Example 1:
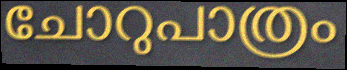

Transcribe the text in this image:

ചോറുപാത്രം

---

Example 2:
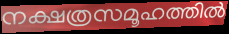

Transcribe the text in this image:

നക്ഷത്രസമൂഹത്തിൽ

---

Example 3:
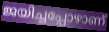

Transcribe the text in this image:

ജയിച്ചപ്പോഴാണ്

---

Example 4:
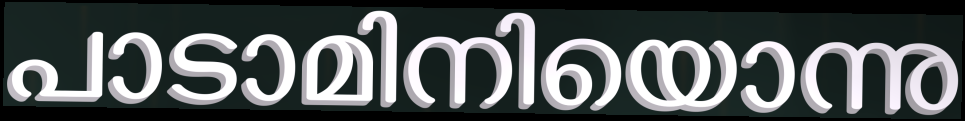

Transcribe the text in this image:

പാടാമിനിയൊന്നു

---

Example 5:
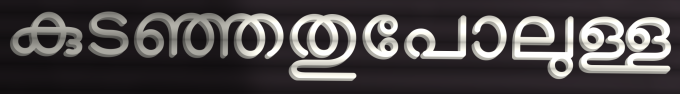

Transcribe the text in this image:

കുടഞ്ഞതുപോലുള്ള